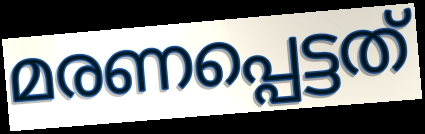
മരണപ്പെട്ടത്